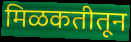
मिळकतीतून